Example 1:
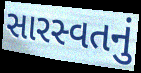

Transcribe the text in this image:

સારસ્વતનું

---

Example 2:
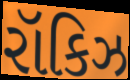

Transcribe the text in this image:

રૉકિઝ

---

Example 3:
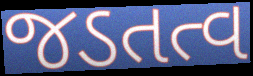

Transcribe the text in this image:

જડતત્વ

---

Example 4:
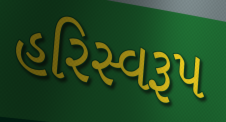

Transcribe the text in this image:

હરિસ્વરૂપ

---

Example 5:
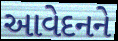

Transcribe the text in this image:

આવેદનને